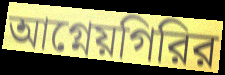
আগ্নেয়গিরির